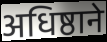
अधिष्ठाने